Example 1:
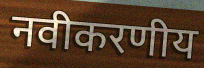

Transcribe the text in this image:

नवीकरणीय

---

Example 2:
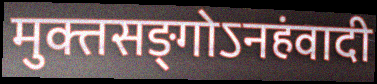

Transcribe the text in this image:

मुक्तसङ्गोऽनहंवादी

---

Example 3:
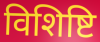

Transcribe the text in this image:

विशिष्टि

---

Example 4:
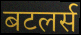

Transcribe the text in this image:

बटलर्स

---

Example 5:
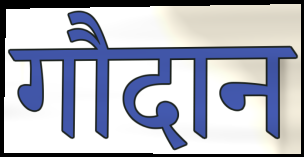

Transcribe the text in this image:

गौदान